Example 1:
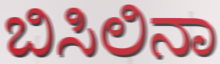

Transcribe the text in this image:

ಬಿಸಿಲಿನಾ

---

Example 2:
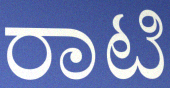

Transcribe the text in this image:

ರಾಟಿ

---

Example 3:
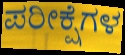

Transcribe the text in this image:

ಪರೀಕ್ಷೆಗಳ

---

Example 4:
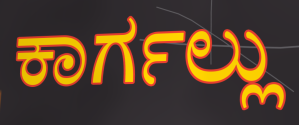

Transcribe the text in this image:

ಕಾರ್ಗಲ್ಲು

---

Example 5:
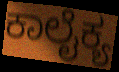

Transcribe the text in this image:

ಕಾಲೈಕ್ಯ